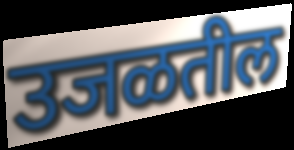
उजळतील